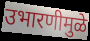
उभारणीमुळे